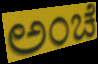
ಅಂಚೆ